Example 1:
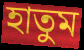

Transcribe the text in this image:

হাতুম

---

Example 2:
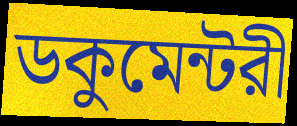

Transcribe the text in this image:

ডকুমেন্টরী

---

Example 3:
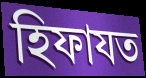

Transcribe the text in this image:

হিফাযত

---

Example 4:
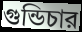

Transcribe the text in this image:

গুন্ডিচার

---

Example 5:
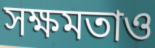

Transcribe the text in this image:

সক্ষমতাও